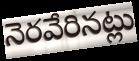
నెరవేరినట్లు